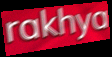
rakhya